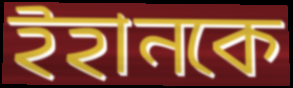
ইহানকে